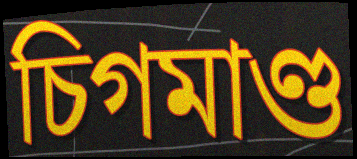
চিগমাণ্ড